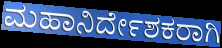
ಮಹಾನಿರ್ದೇಶಕರಾಗಿ